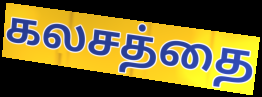
கலசத்தை